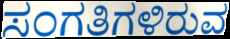
ಸಂಗತಿಗಳಿರುವ